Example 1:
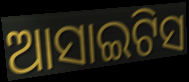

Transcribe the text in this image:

ଆସାଇଟିସ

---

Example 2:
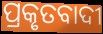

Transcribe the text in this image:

ପ୍ରକୃତବାଦୀ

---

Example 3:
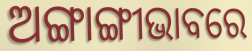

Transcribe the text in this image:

ଅଙ୍ଗାଙ୍ଗୀଭାବରେ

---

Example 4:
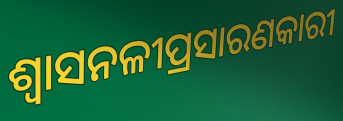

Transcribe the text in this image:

ଶ୍ୱାସନଳୀପ୍ରସାରଣକାରୀ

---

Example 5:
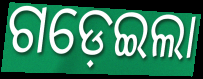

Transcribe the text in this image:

ଗଡ଼େଇଲା